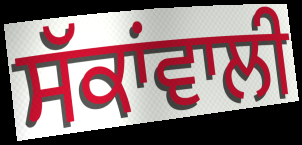
ਸੱਕਾਂਵਾਲੀ